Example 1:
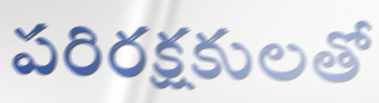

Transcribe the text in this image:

పరిరక్షకులతో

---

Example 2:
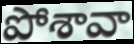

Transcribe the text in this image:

పోశావా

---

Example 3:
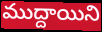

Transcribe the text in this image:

ముద్దాయిని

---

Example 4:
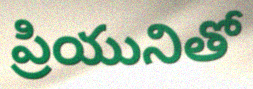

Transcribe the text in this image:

ప్రియునితో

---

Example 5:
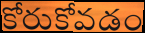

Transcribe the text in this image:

కోరుకోవడం